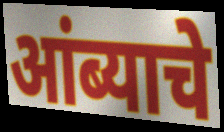
आंब्याचे